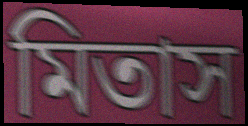
মিতাস